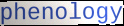
phenology